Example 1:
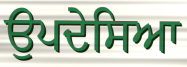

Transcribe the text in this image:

ਉਪਦੇਸਿਆ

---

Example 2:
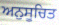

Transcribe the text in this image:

ਅਨੁਸੂਚਿਤ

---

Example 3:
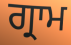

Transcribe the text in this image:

ਗ੍ਰਾਮ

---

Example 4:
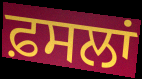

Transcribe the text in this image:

ਫ਼ਸਲਾਂ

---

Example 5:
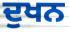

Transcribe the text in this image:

ਦੁਖਨ